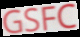
GSFC